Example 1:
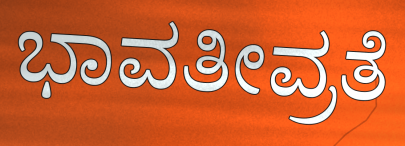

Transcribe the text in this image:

ಭಾವತೀವ್ರತೆ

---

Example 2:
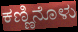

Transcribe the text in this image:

ಕಣ್ಣಿನೊಳು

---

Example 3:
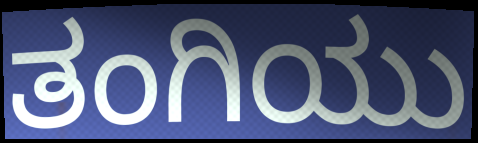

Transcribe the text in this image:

ತಂಗಿಯು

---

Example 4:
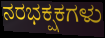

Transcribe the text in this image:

ನರಭಕ್ಷಕಗಳು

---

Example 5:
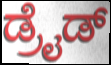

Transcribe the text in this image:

ಡ್ರೈಡ್